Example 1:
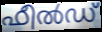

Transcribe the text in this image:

ഫീൽഡ്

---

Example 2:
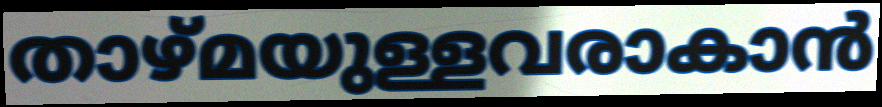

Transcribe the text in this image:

താഴ്മയുള്ളവരാകാൻ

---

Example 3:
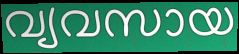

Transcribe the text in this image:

വ്യവസായ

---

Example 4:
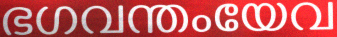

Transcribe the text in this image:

ഭഗവന്തംയേവ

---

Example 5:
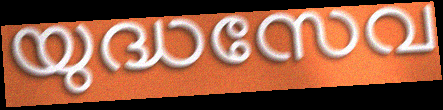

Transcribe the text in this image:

യുദ്ധസേവ